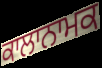
ਕਾਲਾਨਾਮਕ